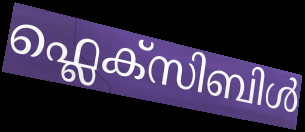
ഫ്ലെക്സിബിൾ